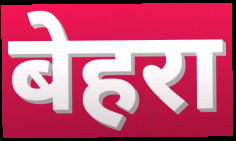
बेहरा